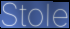
Stole